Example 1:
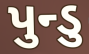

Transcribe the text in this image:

પુન્ડુ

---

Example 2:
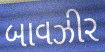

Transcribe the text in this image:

બાવઝીર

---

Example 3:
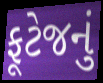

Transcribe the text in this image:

ફૂટેજનું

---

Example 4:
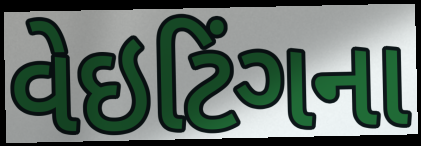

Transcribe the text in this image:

વેઇટિંગના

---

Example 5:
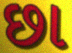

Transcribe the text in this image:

છા